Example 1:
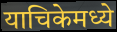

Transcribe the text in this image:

याचिकेमध्ये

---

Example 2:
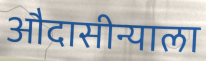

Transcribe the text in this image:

औदासीन्याला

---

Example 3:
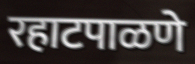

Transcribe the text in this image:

रहाटपाळणे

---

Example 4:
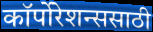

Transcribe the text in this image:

कॉर्पोरेशन्ससाठी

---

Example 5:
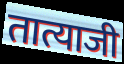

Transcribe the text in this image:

तात्याजी